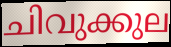
ചിവുക്കുല